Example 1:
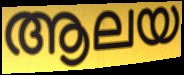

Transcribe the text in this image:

ആലയ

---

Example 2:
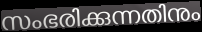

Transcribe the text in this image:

സംഭരിക്കുന്നതിനും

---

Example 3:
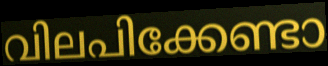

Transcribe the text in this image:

വിലപിക്കേണ്ടാ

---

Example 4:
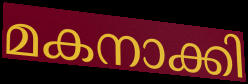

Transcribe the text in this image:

മകനാക്കി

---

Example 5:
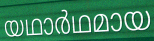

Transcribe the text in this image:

യഥാർഥമായ